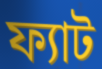
ফ্যাট